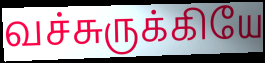
வச்சுருக்கியே